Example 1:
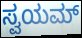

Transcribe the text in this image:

ಸ್ವಯಮ್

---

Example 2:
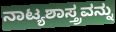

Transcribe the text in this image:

ನಾಟ್ಯಶಾಸ್ತ್ರವನ್ನು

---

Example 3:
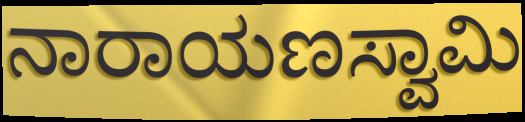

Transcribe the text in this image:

ನಾರಾಯಣಸ್ವಾಮಿ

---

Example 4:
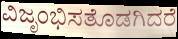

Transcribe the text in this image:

ವಿಜೃಂಭಿಸತೊಡಗಿದರೆ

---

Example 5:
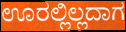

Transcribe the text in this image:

ಊರಲ್ಲಿಲ್ಲದಾಗ